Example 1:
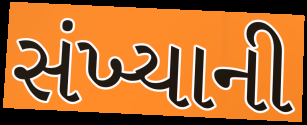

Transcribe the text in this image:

સંખ્યાની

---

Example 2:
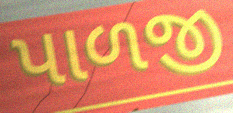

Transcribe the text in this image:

પાળજી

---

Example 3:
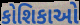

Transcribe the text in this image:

કોશિકાઓ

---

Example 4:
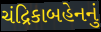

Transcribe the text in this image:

ચંદ્રિકાબહેનનું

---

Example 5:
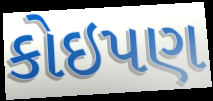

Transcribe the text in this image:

કોઇપણ